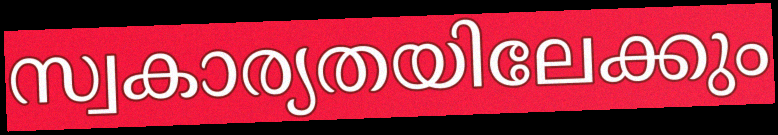
സ്വകാര്യതയിലേക്കും